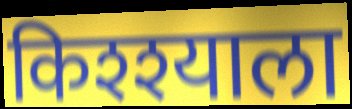
किश्श्याला